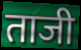
ताजी